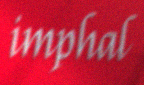
imphal